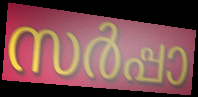
സർപ്പാ